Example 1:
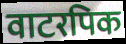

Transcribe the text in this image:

वाटरपिक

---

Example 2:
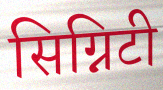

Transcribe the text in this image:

सिग्निटी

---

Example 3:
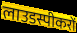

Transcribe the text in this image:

लाउडस्पीकरों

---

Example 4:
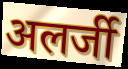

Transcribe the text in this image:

अलर्जी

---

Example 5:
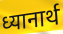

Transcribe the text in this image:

ध्यानार्थ